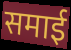
समाई